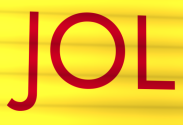
JOL